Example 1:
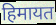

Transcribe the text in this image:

हिमायत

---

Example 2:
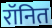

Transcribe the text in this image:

रॉनित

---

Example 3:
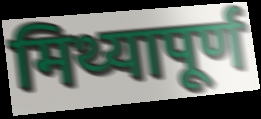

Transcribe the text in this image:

मिथ्यापूर्ण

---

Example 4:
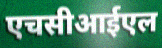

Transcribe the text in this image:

एचसीआईएल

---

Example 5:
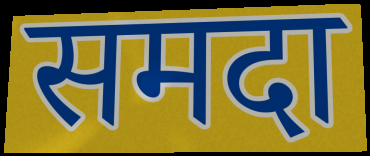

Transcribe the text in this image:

समदा